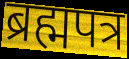
ब्रह्मपत्र